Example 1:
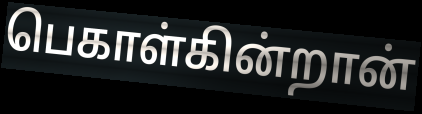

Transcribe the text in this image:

பெகாள்கின்றான்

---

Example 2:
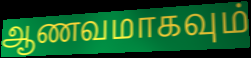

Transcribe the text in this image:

ஆணவமாகவும்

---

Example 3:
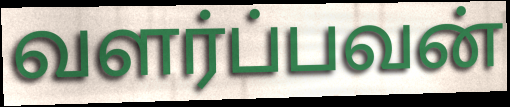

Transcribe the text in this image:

வளர்ப்பவன்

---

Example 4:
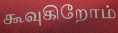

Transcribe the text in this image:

கூவுகிறோம்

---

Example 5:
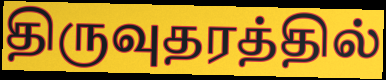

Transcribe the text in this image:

திருவுதரத்தில்